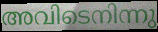
അവിടെനിന്നു